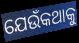
ଯେଉଁକଥାକୁ